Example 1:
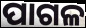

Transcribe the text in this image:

ପାଗଳ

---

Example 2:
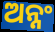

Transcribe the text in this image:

ଅନ୍ନଂ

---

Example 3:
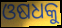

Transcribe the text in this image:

ଓଷଧକୁ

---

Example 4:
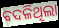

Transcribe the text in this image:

ବଦଳିଥିଲା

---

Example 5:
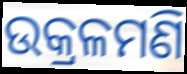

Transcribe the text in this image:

ଉକ୍ରଳମଣି